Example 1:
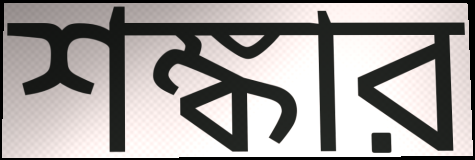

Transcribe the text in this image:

শঙ্কার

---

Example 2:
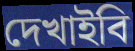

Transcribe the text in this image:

দেখাইবি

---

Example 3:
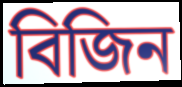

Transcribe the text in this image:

বিজিন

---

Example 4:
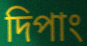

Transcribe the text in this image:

দিপাং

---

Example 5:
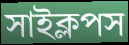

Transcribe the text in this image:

সাইক্লপস